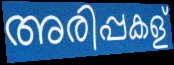
അരിപ്പകള്